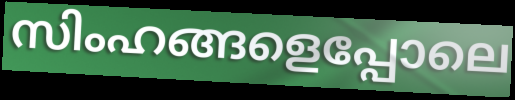
സിംഹങ്ങളെപ്പോലെ